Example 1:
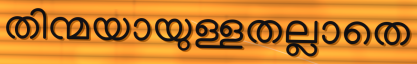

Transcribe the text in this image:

തിന്മയായുള്ളതല്ലാതെ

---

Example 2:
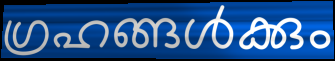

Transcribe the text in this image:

ഗ്രഹങ്ങൾക്കും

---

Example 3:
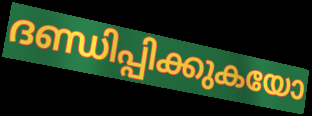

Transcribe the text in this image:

ദണ്ഡിപ്പിക്കുകയോ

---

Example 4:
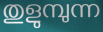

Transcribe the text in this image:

തുളുമ്പുന്ന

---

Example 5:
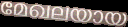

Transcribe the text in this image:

മേഖലയായ